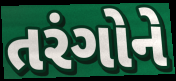
તરંગોને